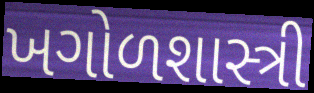
ખગોળશાસ્ત્રી